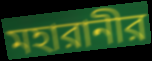
মহারানীর